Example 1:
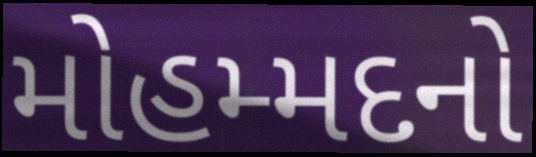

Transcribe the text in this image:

મોહમ્મદનો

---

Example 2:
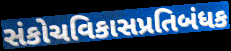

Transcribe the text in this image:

સંકોચવિકાસપ્રતિબંધક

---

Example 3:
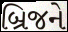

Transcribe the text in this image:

બ્રિજને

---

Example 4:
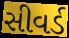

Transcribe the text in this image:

સીવર્ડ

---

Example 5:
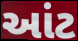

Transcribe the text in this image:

આંટ